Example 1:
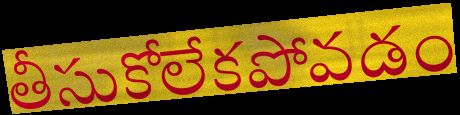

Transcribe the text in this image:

తీసుకోలేకపోవడం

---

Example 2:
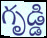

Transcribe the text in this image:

గృడ్డి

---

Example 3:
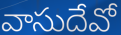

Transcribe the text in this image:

వాసుదేవో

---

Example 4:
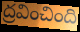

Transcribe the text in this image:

ద్రవించింది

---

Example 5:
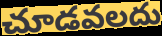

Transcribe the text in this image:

చూడవలదు